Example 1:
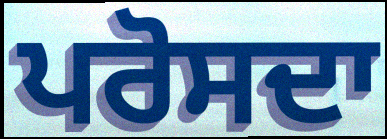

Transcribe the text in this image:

ਪਰੋਸਦਾ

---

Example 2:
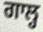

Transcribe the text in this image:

ਗਾਲ੍ਹ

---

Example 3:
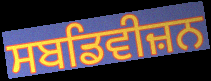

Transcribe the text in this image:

ਸਬਡਿਵੀਜ਼ਨ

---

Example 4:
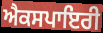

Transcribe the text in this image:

ਐਕਸਪਾਇਰੀ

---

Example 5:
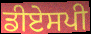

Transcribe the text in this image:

ਡੀਏਸਪੀ